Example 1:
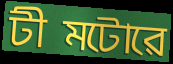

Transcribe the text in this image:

টীমটোৱে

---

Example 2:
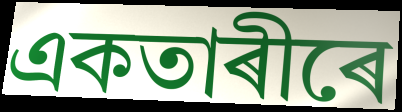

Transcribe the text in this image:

একতাৰীৰে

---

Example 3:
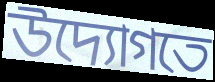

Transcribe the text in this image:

উদ্যোগতে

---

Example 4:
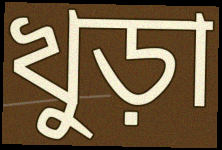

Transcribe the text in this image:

খুড়া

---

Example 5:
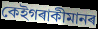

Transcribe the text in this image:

কেইগৰাকীমানৰ